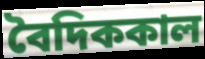
বৈদিককাল